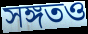
সঙ্গতও